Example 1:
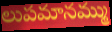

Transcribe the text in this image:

లుపమానమ్ము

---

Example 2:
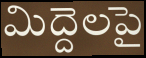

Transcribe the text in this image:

మిద్దెలపై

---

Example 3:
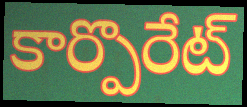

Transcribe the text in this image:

కార్పొరేట్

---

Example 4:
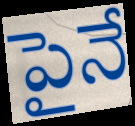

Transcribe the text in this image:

పైనే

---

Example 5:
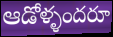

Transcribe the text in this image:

ఆడోళ్ళందరూ